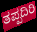
ತಪ್ಪದಿರಿ